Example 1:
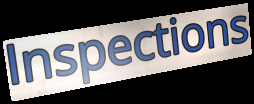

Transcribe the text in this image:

Inspections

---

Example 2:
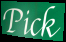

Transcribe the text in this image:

Pick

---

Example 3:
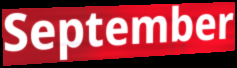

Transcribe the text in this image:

September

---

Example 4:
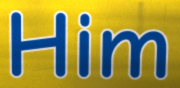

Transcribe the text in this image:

Him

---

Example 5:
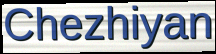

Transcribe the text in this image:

Chezhiyan